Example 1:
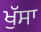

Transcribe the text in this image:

ਖੁੱਸਾ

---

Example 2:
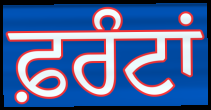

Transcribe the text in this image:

ਫ਼ਰੰਟਾਂ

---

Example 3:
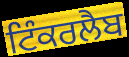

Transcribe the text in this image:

ਟਿੰਕਰਲੈਬ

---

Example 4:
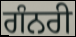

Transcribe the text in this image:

ਗੰਨਰੀ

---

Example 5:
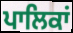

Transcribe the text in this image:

ਪਾਲਿਕਾਂ